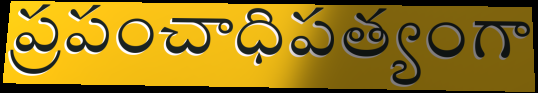
ప్రపంచాధిపత్యంగా